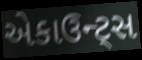
એકાઉન્ટ્સ